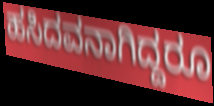
ಹಸಿದವನಾಗಿದ್ದರೂ